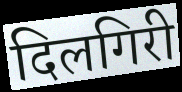
दिलगिरी